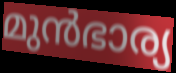
മുൻഭാര്യ